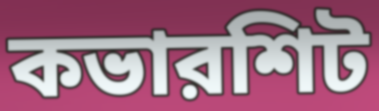
কভারশিট